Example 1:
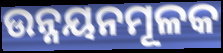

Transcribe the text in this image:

ଉନ୍ନୟନମୂଳକ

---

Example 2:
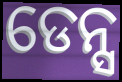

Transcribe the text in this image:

ଡେନ୍ସ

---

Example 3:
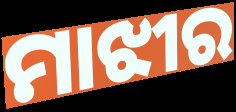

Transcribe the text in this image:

ମାଝୀର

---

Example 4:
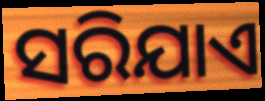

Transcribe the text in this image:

ସରିଯାଏ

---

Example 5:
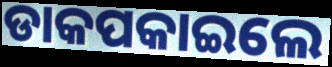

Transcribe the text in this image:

ଡାକପକାଇଲେ